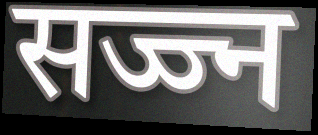
सज्ज्न